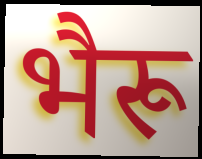
भैरू